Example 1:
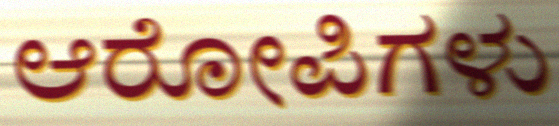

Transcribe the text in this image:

ಆರೋಪಿಗಳು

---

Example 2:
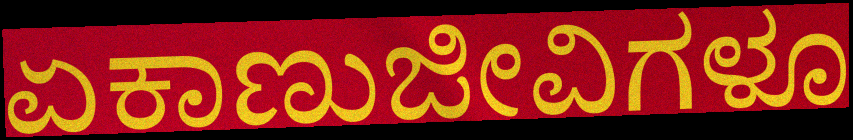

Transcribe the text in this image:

ಏಕಾಣುಜೀವಿಗಳೂ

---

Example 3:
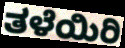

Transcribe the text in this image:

ತಳೆಯಿರಿ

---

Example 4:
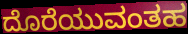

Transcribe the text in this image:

ದೊರೆಯುವಂತಹ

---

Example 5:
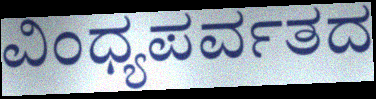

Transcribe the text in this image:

ವಿಂಧ್ಯಪರ್ವತದ